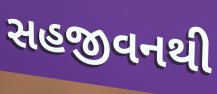
સહજીવનથી